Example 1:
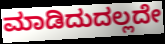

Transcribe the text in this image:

ಮಾಡಿದುದಲ್ಲದೇ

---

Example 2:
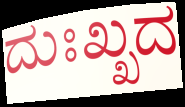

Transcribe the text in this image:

ದುಃಖ್ಖದ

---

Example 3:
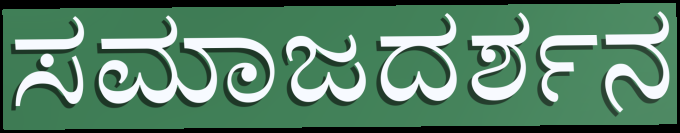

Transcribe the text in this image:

ಸಮಾಜದರ್ಶನ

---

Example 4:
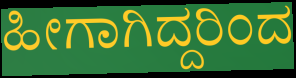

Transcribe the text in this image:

ಹೀಗಾಗಿದ್ದರಿಂದ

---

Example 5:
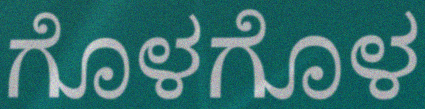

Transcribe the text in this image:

ಗೊಳಗೊಳ